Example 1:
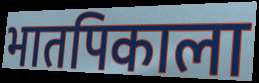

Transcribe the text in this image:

भातपिकाला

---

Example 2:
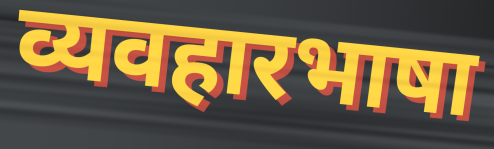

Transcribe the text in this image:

व्यवहारभाषा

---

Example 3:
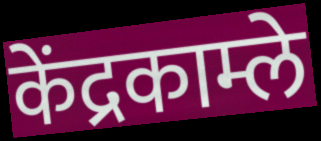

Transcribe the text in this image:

केंद्रकाम्ले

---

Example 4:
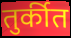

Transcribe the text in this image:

तुर्कीत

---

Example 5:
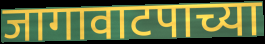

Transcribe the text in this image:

जागावाटपाच्या